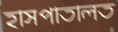
হাসপাতালত